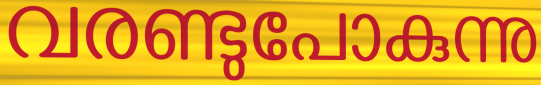
വരണ്ടുപോകുന്നു